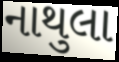
નાથુલા